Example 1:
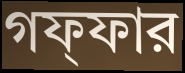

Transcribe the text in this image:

গফ্ফার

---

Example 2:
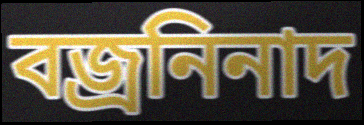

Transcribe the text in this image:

বজ্রনিনাদ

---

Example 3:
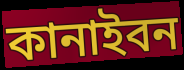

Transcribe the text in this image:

কানাইবন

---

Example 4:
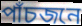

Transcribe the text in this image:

পাঁচজনে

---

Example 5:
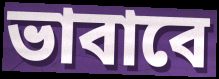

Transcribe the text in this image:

ভাবাবে